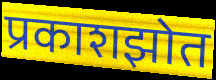
प्रकाशझोत